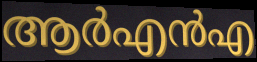
ആർഎൻഎ